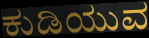
ಕುಡಿಯುವ